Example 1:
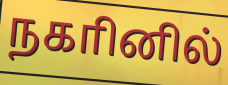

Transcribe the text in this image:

நகரினில்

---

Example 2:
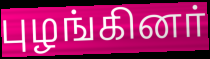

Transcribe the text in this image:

புழங்கினர்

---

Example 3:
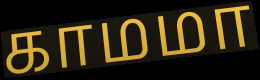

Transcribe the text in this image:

காமமா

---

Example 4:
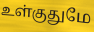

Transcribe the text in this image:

உள்குதுமே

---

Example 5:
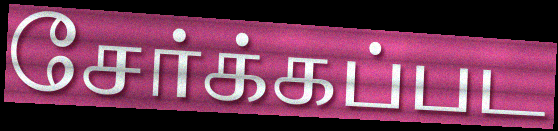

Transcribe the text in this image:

சேர்க்கப்பட